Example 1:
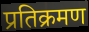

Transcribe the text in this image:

प्रतिक्रमण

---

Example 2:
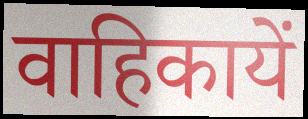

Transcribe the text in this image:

वाहिकायें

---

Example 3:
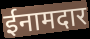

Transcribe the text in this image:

ईनामदार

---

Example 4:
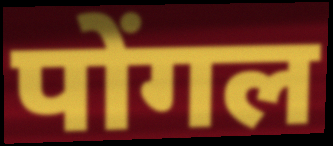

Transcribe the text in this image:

पोंगल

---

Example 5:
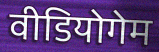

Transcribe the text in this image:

वीडियोगेम